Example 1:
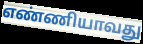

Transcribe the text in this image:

எண்ணியாவது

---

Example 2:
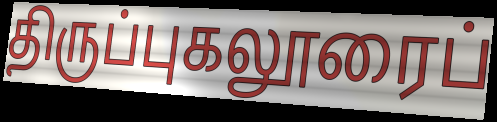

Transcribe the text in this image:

திருப்புகலூரைப்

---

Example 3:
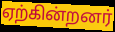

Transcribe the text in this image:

ஏற்கின்றனர்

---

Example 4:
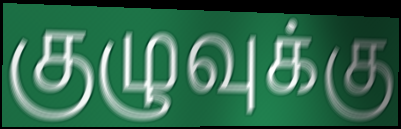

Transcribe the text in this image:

குழுவுக்கு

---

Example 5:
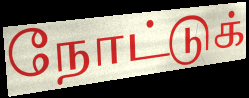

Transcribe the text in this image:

நோட்டுக்